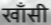
खाँसी